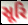
સૂરિ